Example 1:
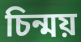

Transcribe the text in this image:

চিন্ময়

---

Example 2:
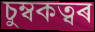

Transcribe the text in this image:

চুম্বকত্বৰ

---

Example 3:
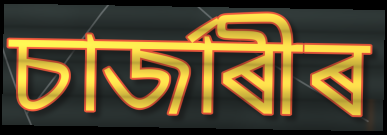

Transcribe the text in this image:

চাৰ্জাৰীৰ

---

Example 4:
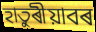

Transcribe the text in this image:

হাতুৰীয়াবৰ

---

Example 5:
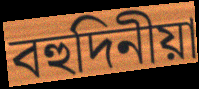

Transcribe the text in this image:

বহুদিনীয়া